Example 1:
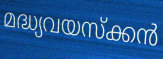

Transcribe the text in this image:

മദ്ധ്യവയസ്ക്കൻ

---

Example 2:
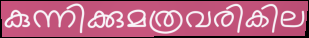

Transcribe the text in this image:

കുന്നിക്കുമത്രവരികില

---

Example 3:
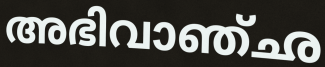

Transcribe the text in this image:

അഭിവാഞ്ഛ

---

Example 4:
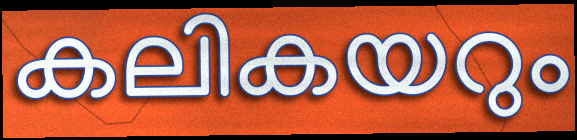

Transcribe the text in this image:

കലികയറും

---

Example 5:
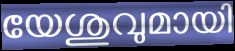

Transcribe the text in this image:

യേശുവുമായി